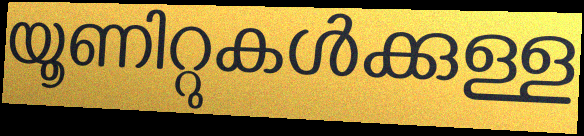
യൂണിറ്റുകൾക്കുള്ള